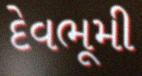
દેવભૂમી